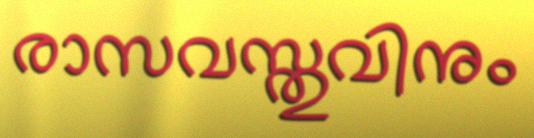
രാസവസ്തുവിനും